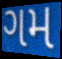
ગમ